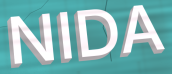
NIDA